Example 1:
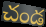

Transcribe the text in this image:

చండ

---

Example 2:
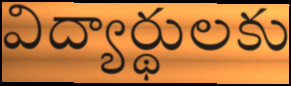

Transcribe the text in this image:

విద్యార్థులకు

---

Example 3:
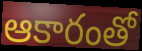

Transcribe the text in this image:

ఆకారంతో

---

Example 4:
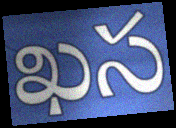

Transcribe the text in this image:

ఖస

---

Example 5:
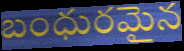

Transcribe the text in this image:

బంధురమైన